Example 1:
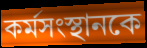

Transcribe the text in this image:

কর্মসংস্থানকে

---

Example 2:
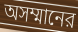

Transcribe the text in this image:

অসম্মানের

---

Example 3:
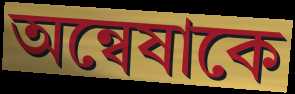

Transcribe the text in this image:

অন্বেষাকে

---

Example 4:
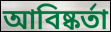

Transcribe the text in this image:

আবিষ্কর্তা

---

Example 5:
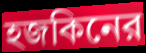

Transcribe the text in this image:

হজকিনের